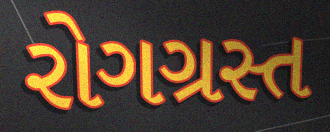
રોગગ્રસ્ત